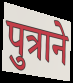
पुत्राने